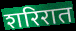
शरिरात